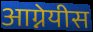
आग्नेयीस